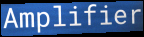
Amplifier